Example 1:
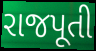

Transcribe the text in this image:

રાજપૂતી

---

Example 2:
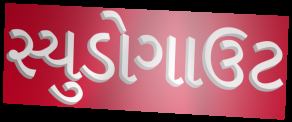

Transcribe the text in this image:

સ્યુડોગાઉટ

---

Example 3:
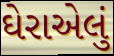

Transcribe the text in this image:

ઘેરાએલું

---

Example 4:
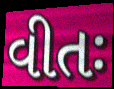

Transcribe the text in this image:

વીતઃ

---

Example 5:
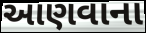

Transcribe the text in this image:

આણવાના